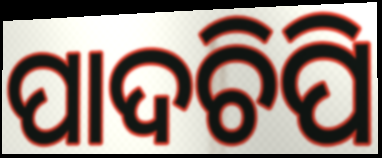
ପାଦଚିପି